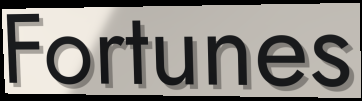
Fortunes